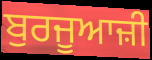
ਬੁਰਜੂਆਜ਼ੀ